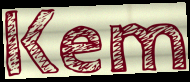
Kem